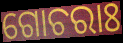
ଗୋଚରାଃ